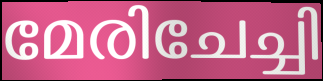
മേരിചേച്ചി